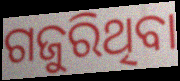
ଗଜୁରିଥିବା